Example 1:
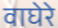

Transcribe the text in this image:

वाघेरे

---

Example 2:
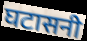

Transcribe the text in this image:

घटासनी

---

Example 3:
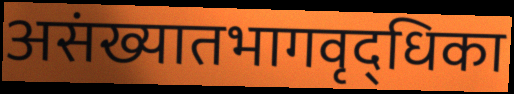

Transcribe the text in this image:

असंख्यातभागवृद्धिका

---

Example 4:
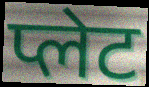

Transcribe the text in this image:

प्‍लेट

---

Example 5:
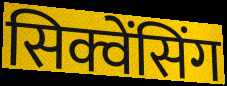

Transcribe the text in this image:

सिक्‍वेंसिंग